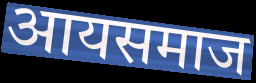
आयसमाज